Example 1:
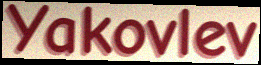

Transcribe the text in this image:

Yakovlev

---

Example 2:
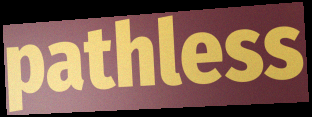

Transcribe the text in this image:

pathless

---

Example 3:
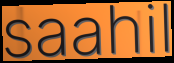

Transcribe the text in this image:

saahil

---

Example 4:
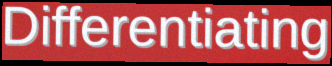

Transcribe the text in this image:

Differentiating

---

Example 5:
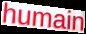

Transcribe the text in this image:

humain